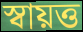
স্বায়ত্ত